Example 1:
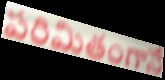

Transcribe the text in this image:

పరిమితంగానే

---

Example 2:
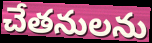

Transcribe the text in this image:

చేతనులను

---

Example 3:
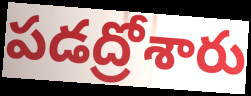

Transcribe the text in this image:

పడద్రోశారు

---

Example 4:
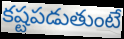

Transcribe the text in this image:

కష్టపడుతుంటే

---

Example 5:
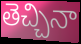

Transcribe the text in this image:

తెచ్చినా